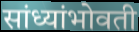
सांध्यांभोवती